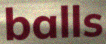
balls